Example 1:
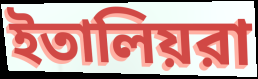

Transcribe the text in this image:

ইতালিয়রা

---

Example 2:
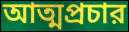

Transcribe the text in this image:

আত্মপ্রচার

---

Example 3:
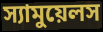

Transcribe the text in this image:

স্যামুয়েলস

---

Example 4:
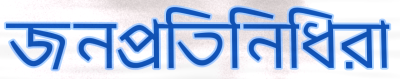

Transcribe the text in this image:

জনপ্রতিনিধিরা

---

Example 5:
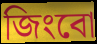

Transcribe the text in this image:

জিংবো